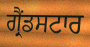
ਗ੍ਰੈਂਡਸਟਾਰ